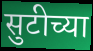
सुटीच्या